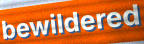
bewildered